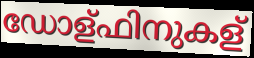
ഡോള്ഫിനുകള്